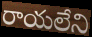
రాయలేని